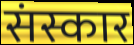
संस्कार